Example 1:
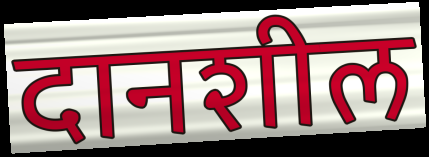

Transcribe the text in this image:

दानशील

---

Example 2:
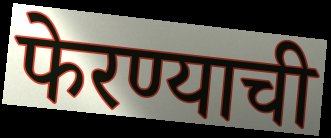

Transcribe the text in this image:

फेरण्याची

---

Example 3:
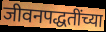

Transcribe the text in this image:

जीवनपद्धतींच्या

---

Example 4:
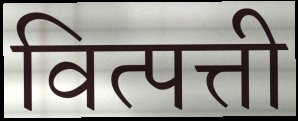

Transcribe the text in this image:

वित्पत्ती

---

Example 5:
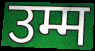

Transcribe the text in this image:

उम्म